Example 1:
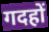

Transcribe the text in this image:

गदहों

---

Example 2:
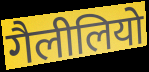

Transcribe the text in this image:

गैलीलियो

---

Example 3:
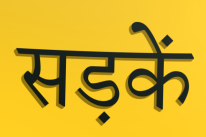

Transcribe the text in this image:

सड़कें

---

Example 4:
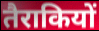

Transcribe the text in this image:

तैराकियों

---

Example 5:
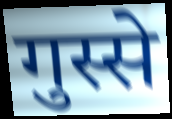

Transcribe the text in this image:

गुस्से